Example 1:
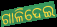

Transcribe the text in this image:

ଗାଳିଦେଇ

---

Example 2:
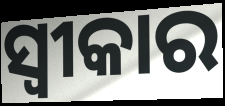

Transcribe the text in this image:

ସ୍ଵୀକାର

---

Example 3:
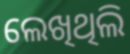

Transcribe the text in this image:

ଲେଖିଥିଲି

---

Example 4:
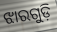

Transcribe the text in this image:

ଝାରଗୁଡ଼ି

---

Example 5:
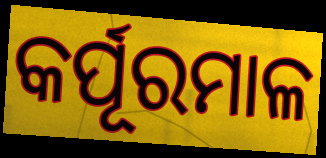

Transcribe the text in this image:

କର୍ପୂରମାଳ